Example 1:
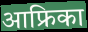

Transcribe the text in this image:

आफ्रिका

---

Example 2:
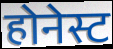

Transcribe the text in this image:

होनेस्ट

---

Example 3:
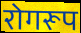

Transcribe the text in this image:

रोगरूप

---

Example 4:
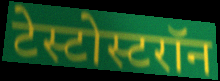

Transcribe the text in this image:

टेस्टोस्टरॉन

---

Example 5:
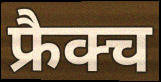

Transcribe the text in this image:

फ्रैक्च